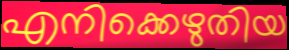
എനിക്കെഴുതിയ